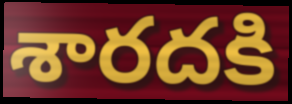
శారదకి